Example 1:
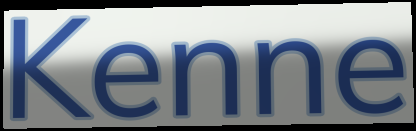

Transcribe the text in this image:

Kenne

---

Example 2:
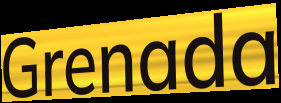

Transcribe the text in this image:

Grenada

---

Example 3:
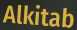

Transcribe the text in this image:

Alkitab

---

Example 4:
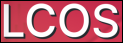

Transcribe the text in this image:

LCOS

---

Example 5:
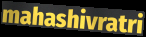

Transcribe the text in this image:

mahashivratri